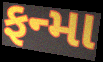
ફન્મા